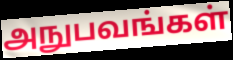
அநுபவங்கள்